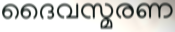
ദൈവസ്മരണ